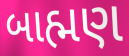
બાહ્મણ